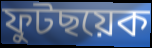
ফুটছয়েক